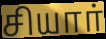
சியார்